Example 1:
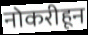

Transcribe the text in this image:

नोकरीहून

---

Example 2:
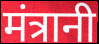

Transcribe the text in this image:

मंत्रानी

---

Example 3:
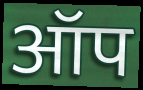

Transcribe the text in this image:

ऑप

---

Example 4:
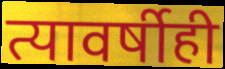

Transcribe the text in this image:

त्यावर्षीही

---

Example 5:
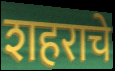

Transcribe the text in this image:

शहराचे